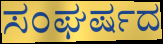
ಸಂಘರ್ಷದ